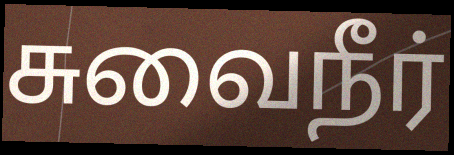
சுவைநீர்